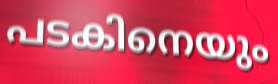
പടകിനെയും